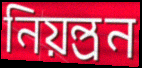
নিয়ন্ত্রন